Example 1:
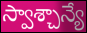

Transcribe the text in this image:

స్వాశ్చాన్యే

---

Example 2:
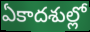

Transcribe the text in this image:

ఏకాదశుల్లో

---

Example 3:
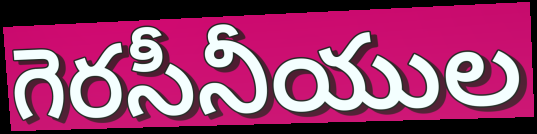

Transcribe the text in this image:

గెరసీనీయుల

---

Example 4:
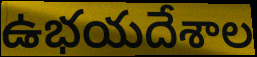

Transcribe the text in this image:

ఉభయదేశాల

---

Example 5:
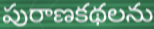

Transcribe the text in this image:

పురాణకథలను